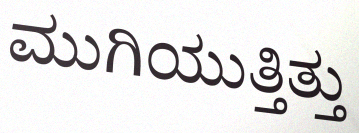
ಮುಗಿಯುತ್ತಿತ್ತು